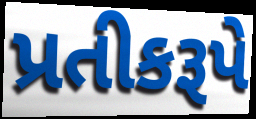
પ્રતીકરૂપે